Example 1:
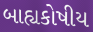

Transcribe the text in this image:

બાહ્યકોષીય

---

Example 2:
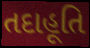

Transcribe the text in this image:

તદાહૂતિ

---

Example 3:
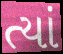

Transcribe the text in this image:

ત્‍યાં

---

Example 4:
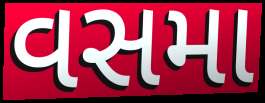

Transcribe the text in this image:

વસમા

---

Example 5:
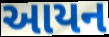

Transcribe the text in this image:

આયન